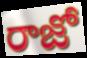
రాజో